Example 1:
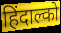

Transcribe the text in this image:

हिंदाल्को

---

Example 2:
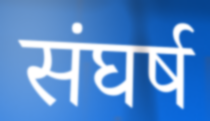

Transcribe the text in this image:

संघर्ष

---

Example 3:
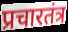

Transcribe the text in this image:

प्रचारतंत्र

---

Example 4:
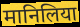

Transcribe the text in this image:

मानिलिया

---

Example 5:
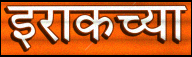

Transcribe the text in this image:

इराकच्या